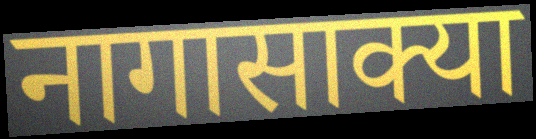
नागासाक्या